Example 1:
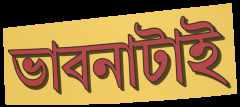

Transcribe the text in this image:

ভাবনাটাই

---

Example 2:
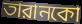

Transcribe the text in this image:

তারানকো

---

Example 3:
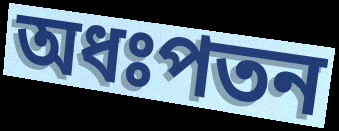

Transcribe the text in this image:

অধঃপতন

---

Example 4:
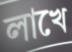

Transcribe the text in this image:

লাখে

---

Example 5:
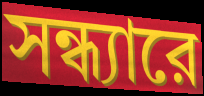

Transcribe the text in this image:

সন্ধ্যারে